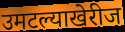
उमटल्याखेरीज